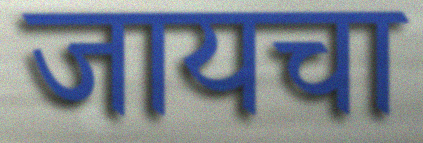
जायचा